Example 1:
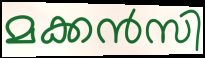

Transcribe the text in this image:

മക്കൻസി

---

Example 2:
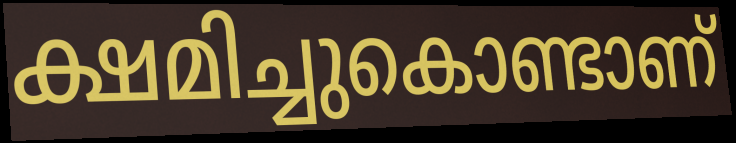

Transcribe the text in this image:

ക്ഷമിച്ചുകൊണ്ടാണ്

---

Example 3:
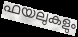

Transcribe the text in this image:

ഫയലുകളും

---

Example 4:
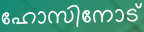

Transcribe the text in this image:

ഹോസിനോട്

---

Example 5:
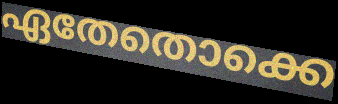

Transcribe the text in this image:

ഏതേതൊക്കെ